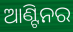
ଆଣ୍ଟିନର